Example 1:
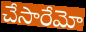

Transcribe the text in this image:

చేసారేమో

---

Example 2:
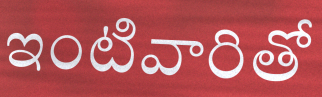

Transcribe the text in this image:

ఇంటివారితో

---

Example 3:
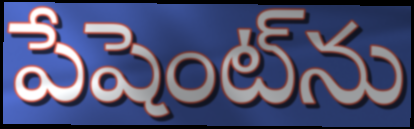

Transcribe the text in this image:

పేషెంట్‌ను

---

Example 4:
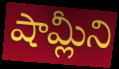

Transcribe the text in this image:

షామ్లీని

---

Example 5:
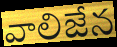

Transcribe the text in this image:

వాలిజేన